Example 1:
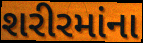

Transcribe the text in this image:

શરીરમાંના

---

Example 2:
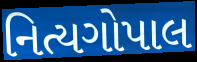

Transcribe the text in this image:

નિત્યગોપાલ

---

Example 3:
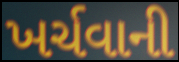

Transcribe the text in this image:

ખર્ચવાની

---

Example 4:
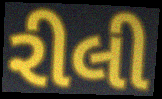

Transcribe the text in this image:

રીલી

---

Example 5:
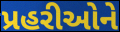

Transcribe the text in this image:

પ્રહરીઓને